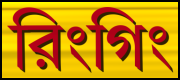
রিংগিং